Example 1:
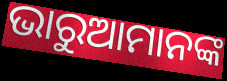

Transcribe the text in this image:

ଭାରୁଆମାନଙ୍କ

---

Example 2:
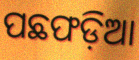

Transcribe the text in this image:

ପଛଫଡ଼ିଆ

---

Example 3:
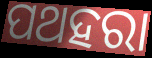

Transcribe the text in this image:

ପଥହରା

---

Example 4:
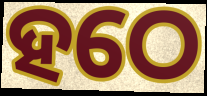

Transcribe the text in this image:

ହଠେ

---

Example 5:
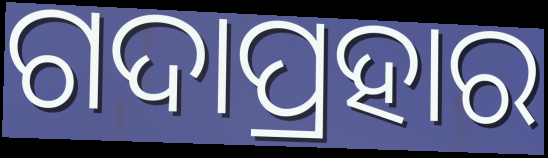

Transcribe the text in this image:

ଗଦାପ୍ରହାର